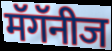
मॅगॅनीज